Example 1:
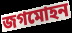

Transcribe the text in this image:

জগমোহন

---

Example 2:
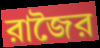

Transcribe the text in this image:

রাজৈর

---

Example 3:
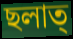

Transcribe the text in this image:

ছলাত্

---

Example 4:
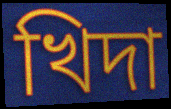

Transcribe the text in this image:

খিদা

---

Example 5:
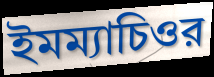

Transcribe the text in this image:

ইমম্যাচিওর